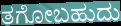
ತಗೋಬಹುದು